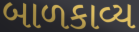
બાળકાવ્ય